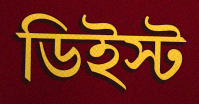
ডিইস্ট